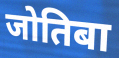
जोतिबा